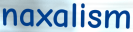
naxalism